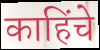
काहिंचे